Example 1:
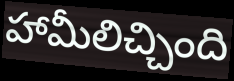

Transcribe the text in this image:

హామీలిచ్చింది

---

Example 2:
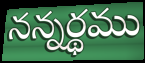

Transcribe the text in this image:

నన్నర్థము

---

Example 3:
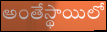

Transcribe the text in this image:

అంతేస్థాయిలో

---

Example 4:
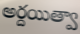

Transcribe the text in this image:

అర్దయిత్వా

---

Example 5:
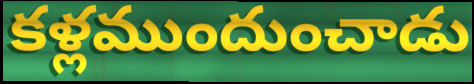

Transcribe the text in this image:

కళ్లముందుంచాడు